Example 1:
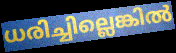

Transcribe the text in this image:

ധരിച്ചില്ലെങ്കിൽ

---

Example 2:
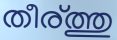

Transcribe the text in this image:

തീര്ത്തു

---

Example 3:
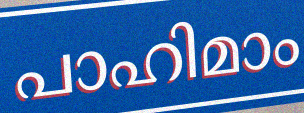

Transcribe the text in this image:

പാഹിമാം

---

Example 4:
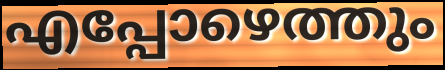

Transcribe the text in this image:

എപ്പോഴെത്തും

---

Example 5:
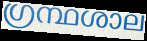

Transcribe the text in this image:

ഗ്രന്ഥശാല